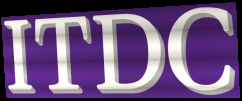
ITDC